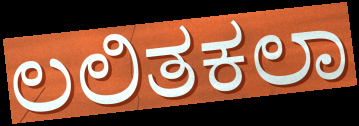
ಲಲಿತಕಲಾ